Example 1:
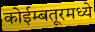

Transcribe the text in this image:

कोईम्बतूरमध्ये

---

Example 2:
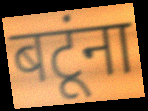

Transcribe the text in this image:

बटूंना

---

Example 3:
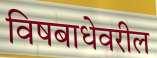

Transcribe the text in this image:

विषबाधेवरील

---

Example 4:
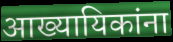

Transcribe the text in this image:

आख्यायिकांना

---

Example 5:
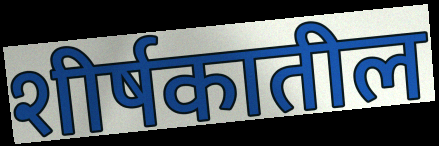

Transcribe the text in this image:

शीर्षकातील